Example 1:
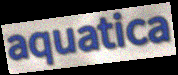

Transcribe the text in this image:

aquatica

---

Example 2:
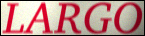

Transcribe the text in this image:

LARGO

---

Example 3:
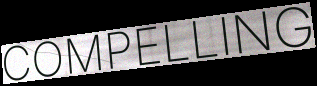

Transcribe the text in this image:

COMPELLING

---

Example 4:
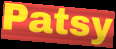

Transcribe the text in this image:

Patsy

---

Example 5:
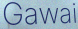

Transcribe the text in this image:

Gawai